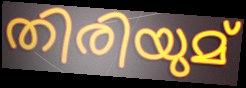
തിരിയുമ്